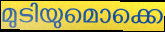
മുടിയുമൊക്കെ